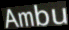
Ambu